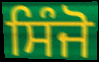
ਸਿੰਜੋ